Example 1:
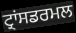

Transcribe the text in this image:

ਟ੍ਰਾਂਸਡਰਮਲ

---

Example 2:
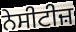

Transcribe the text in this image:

ਨੇਸੀਟੀਜ਼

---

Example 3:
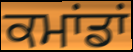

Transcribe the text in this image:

ਕਮਾਂਡਾਂ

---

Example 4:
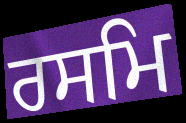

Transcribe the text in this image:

ਰਸਮਿ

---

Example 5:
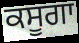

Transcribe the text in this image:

ਕਸੂਗਾ